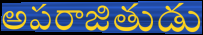
అపరాజితుడు